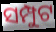
ସମ୍ପୁଟ